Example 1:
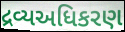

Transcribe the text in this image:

દ્રવ્યઅધિકરણ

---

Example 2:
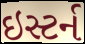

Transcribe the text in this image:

ઇસ્ટર્ન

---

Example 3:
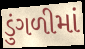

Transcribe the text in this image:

ડુંગળીમાં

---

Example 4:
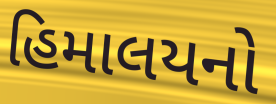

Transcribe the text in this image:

હિમાલયનો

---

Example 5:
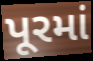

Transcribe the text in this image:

પૂરમાં